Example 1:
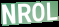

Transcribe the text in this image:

NROL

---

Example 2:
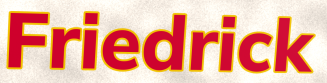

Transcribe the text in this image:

Friedrick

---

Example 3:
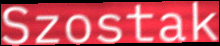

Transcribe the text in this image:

Szostak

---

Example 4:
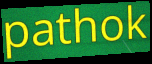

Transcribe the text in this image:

pathok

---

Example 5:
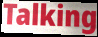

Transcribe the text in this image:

Talking